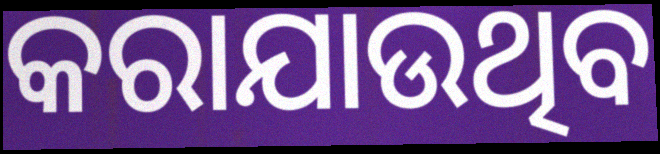
କରାଯାଉଥିବ